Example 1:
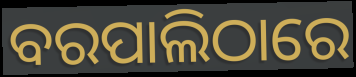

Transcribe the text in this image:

ବରପାଲିଠାରେ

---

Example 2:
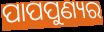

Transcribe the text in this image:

ପାପପୁଣ୍ୟର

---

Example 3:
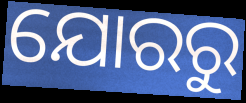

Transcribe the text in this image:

ଯୋରରୁ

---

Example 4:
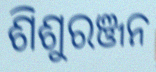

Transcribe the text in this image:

ଶିଶୁରଞ୍ଜନ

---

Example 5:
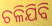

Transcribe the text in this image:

ଚଳିଯିବି